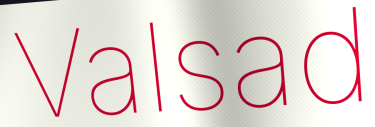
Valsad